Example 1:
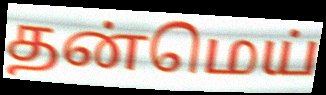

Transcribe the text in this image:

தன்மெய்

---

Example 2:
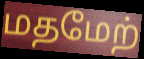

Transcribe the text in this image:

மதமேற்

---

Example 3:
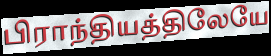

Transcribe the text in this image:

பிராந்தியத்திலேயே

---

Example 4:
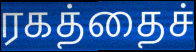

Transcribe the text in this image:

ரகத்தைச்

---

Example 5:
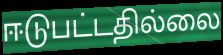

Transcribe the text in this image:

ஈடுபட்டதில்லை